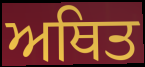
ਅਥਿਤ